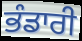
ਭੰਡਾਰੀ